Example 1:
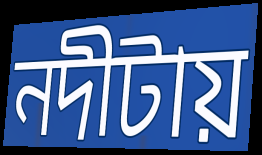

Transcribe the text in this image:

নদীটায়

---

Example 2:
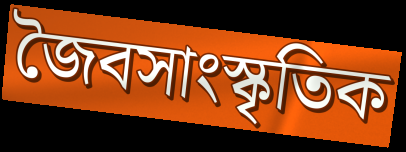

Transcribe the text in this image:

জৈবসাংস্কৃতিক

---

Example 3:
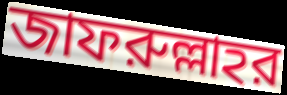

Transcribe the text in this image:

জাফরুল্লাহর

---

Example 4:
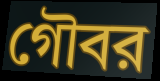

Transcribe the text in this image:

গৌবর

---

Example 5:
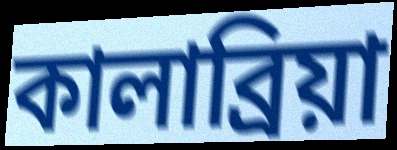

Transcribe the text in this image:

কালাব্রিয়া